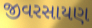
જીવરસાયણ